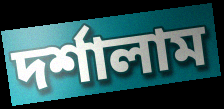
দর্শালাম